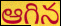
ఆగిన